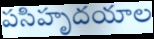
పసిహృదయాల